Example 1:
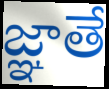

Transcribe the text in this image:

జ్ఞాతే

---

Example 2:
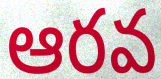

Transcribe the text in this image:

ఆరవ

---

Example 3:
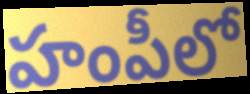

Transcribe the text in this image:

హంపీలో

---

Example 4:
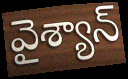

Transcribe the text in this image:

వైశ్యాన్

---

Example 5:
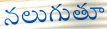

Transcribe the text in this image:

నలుగుతూ